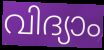
വിദ്യാം